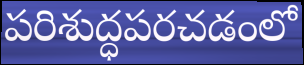
పరిశుద్ధపరచడంలో